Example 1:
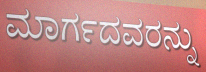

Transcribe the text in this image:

ಮಾರ್ಗದವರನ್ನು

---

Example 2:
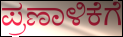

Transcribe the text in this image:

ಪ್ರಣಾಳಿಕೆಗೆ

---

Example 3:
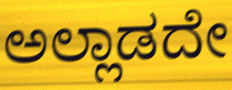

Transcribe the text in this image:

ಅಲ್ಲಾಡದೇ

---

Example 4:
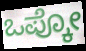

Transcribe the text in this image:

ಒಪ್ಕೋ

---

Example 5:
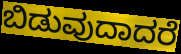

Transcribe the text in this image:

ಬಿಡುವುದಾದರೆ